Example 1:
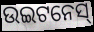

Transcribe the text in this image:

ଉଇଟନେସ୍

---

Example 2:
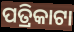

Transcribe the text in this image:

ପତ୍ରିକାଟା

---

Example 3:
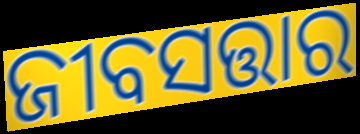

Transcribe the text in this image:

ଜୀବସତ୍ତାର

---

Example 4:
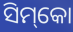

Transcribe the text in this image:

ସିମ୍‌କୋ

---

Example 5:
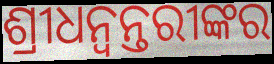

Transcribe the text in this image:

ଶ୍ରୀଧନ୍ୱନ୍ତରୀଙ୍କର